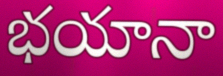
భయానా